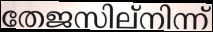
തേജസില്നിന്ന്